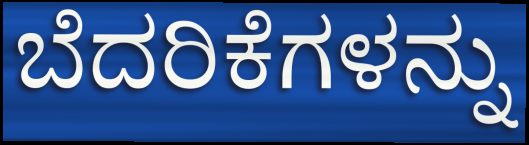
ಬೆದರಿಕೆಗಳನ್ನು